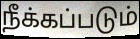
நீக்கப்படும்